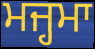
ਮਜ੍ਹਮਾ